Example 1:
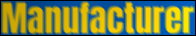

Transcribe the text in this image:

Manufacturer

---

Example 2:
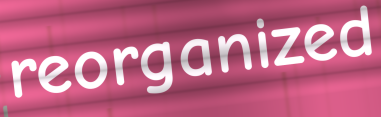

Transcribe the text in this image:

reorganized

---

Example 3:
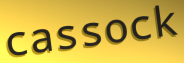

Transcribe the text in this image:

cassock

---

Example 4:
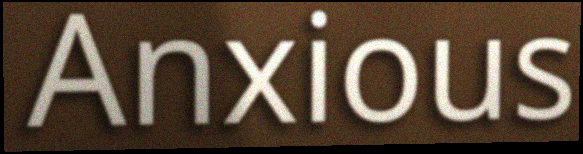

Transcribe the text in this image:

Anxious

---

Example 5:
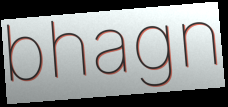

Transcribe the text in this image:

bhagn